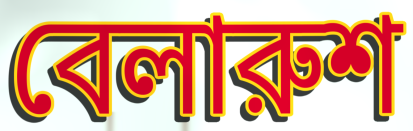
বেলারুশ